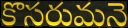
కొసరుమనె